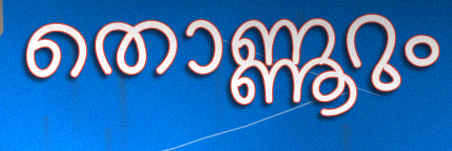
തൊണ്ണൂറും